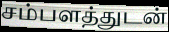
சம்பளத்துடன்